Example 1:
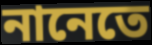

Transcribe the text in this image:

নানেতে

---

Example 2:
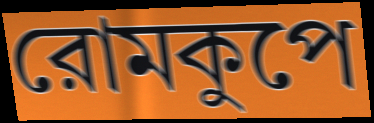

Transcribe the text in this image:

রোমকুপে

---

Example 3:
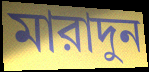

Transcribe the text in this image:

মারাদুন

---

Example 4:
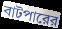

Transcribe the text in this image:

বাটপারের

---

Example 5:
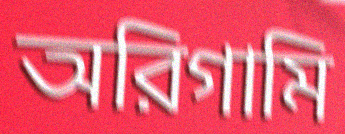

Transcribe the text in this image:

অরিগামি